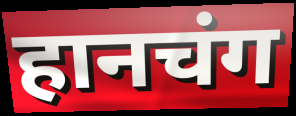
हानचंग